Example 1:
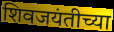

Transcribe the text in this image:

शिवजयंतीच्या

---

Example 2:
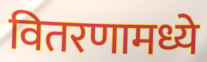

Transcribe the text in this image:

वितरणामध्ये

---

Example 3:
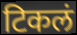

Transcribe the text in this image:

टिकलं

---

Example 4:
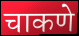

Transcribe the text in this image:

चाकणे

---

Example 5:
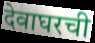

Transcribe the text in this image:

देवाघरची